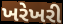
ખરેખરી